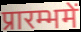
प्रारम्भमें